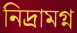
নিদ্ৰামগ্ন